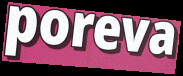
poreva